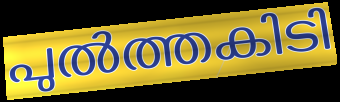
പുൽത്തകിടി